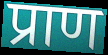
प्राण